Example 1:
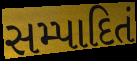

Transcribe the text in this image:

સમ્પાદિતં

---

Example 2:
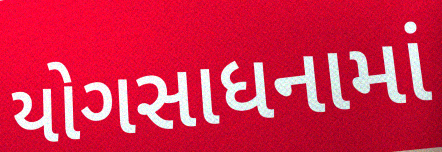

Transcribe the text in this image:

યોગસાધનામાં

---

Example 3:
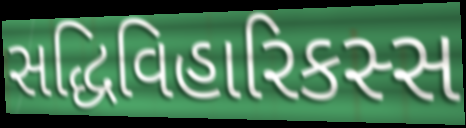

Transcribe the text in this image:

સદ્ધિવિહારિકસ્સ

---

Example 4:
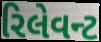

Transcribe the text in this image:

રિલેવન્ટ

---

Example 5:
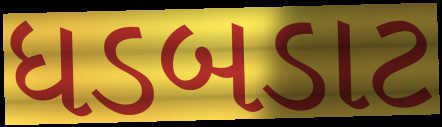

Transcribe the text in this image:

ધડબડાટ